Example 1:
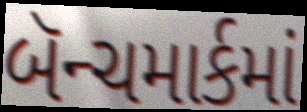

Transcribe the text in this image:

બૅન્ચમાર્કમાં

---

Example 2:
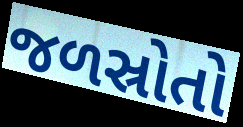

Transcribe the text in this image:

જળસ્રોતો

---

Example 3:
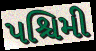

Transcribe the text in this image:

પશ્ચિમી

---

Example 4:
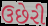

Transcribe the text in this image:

ઉછેરી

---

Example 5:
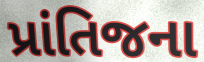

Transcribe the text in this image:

પ્રાંતિજના